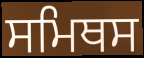
ਸਮਿਥਸ